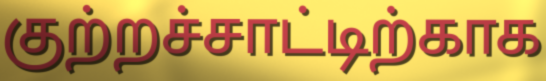
குற்றச்சாட்டிற்காக